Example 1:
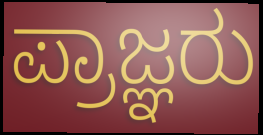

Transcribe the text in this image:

ಪ್ರಾಜ್ಞರು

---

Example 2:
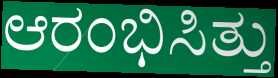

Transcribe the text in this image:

ಆರಂಭಿಸಿತ್ತು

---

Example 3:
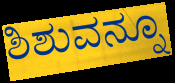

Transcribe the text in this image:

ಶಿಶುವನ್ನೂ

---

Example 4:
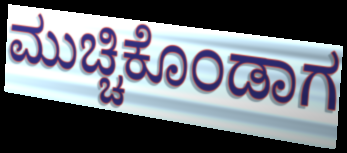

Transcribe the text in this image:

ಮುಚ್ಚಿಕೊಂಡಾಗ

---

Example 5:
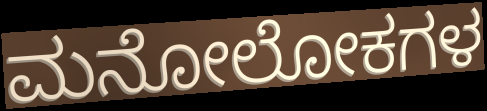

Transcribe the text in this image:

ಮನೋಲೋಕಗಳ